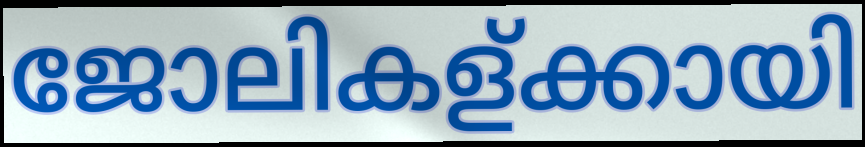
ജോലികള്ക്കായി